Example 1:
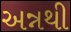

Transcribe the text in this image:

અન્નથી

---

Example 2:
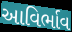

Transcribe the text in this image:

આવિર્ભાવ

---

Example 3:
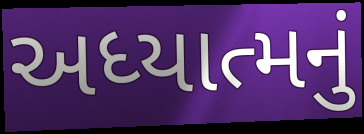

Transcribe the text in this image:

અધ્યાત્મનું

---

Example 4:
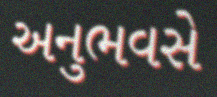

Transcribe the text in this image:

અનુભવસે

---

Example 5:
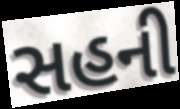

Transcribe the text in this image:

સહની